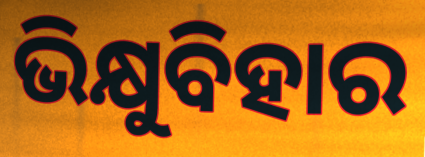
ଭିକ୍ଷୁବିହାର